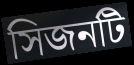
সিজনটি